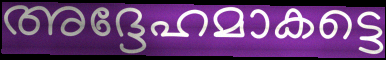
അദ്ദേഹമാകട്ടെ